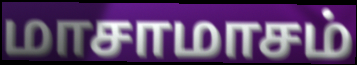
மாசாமாசம்